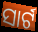
ସାର୍ଟ